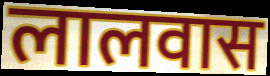
लालवास